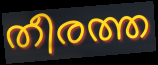
തീരത്ത